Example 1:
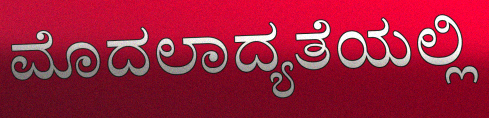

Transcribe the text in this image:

ಮೊದಲಾದ್ಯತೆಯಲ್ಲಿ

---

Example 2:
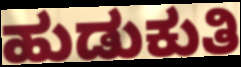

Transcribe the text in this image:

ಹುಡುಕುತಿ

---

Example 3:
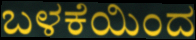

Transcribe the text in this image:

ಬಳಕೆಯಿಂದ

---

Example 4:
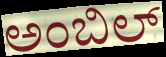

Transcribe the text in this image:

ಅಂಬಿಲ್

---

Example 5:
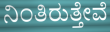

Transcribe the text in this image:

ನಿಂತಿರುತ್ತೇವೆ